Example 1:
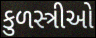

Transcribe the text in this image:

કુળસ્ત્રીઓ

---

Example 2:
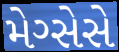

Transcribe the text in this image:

મેગ્સેસે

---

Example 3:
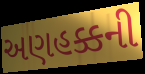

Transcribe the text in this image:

અણહક્કની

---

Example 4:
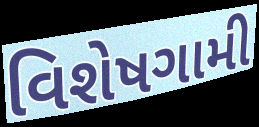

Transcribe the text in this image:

વિશેષગામી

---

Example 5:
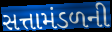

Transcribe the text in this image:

સત્તામંડળની